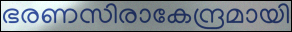
ഭരണസിരാകേന്ദ്രമായി